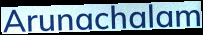
Arunachalam